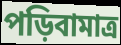
পড়িবামাত্র